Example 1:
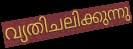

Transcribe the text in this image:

വ്യതിചലിക്കുന്നു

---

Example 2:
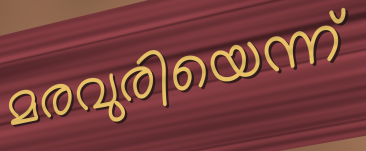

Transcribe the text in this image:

മരവുരിയെന്ന്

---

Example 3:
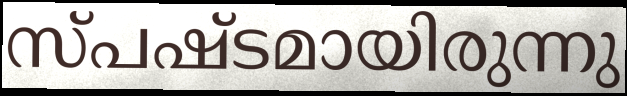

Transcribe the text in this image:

സ്പഷ്ടമായിരുന്നു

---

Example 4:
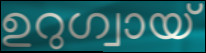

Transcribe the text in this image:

ഉറുഗ്വായ്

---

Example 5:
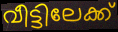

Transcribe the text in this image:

വീട്ടിലേക്ക്